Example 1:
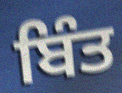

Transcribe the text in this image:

ਬਿੰਤ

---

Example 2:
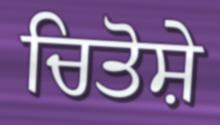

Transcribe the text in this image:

ਚਿਤੋਸ਼ੇ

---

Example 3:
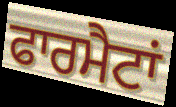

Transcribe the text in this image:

ਫਾਰਮੈਟਾਂ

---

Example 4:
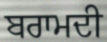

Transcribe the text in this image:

ਬਰਾਮਦੀ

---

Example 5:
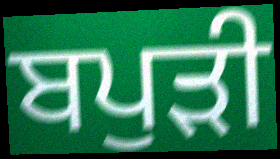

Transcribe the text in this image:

ਬਪੁੜੀ